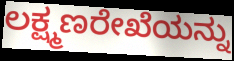
ಲಕ್ಷ್ಮಣರೇಖೆಯನ್ನು